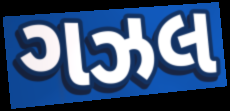
ગઝલ